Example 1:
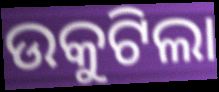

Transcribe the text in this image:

ଉକୁଟିଲା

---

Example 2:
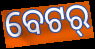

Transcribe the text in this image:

ବେଟର୍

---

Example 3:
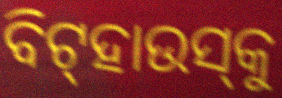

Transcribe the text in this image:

ବିଟ୍‌ହାଉସ୍‌କୁ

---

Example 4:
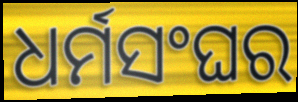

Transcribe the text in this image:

ଧର୍ମସଂଘର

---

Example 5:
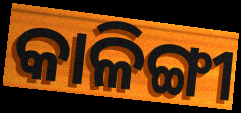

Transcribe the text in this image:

କାଳିଙ୍ଗୀ